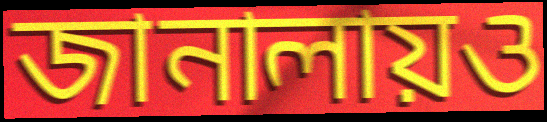
জানালায়ও